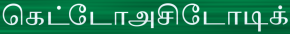
கெட்டோஅசிடோடிக்